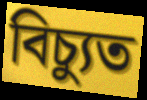
বিচ্যুত